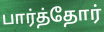
பார்த்தோர்